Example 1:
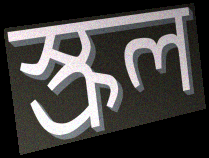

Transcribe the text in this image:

স্ক্রল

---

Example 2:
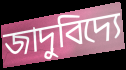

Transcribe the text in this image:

জাদুবিদ্যে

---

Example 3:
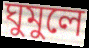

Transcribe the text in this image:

ঘুমুলে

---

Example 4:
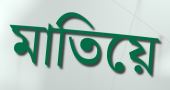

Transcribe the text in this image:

মাতিয়ে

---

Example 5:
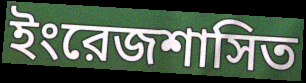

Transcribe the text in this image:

ইংরেজশাসিত